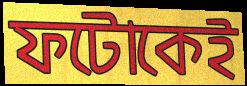
ফটোকেই